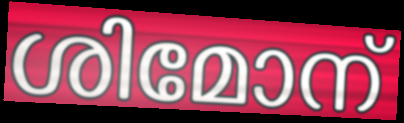
ശിമോന്